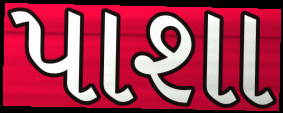
પાશા